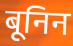
बूनिन